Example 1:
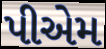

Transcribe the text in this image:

પીએમ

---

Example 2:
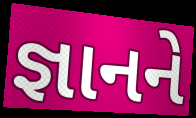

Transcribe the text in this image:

જ્ઞાનને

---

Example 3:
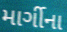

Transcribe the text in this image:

માર્ગીના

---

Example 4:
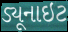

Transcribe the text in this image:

ડ્યૂનાઇટ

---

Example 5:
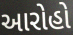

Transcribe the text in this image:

આરોહો